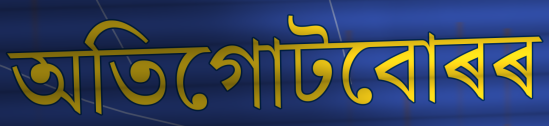
অতিগোটবোৰৰ